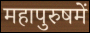
महापुरुषमें